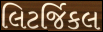
લિટર્જિકલ